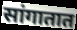
सांगातात